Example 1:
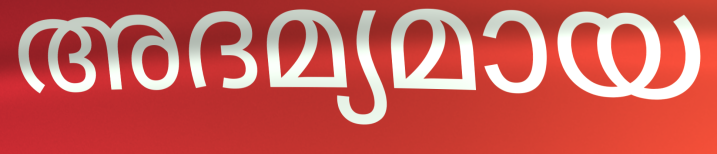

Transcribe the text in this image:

അദമ്യമായ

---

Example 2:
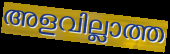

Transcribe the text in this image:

അളവില്ലാത്ത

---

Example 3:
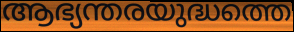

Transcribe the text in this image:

ആഭ്യന്തരയുദ്ധത്തെ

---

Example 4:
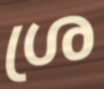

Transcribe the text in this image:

ശ്ര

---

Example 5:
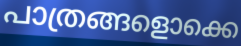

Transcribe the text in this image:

പാത്രങ്ങളൊക്കെ